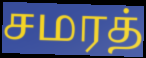
சமரத்